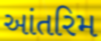
આંતરિમ